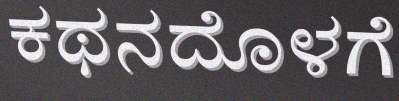
ಕಥನದೊಳಗೆ